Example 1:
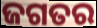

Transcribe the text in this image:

ଜଗତର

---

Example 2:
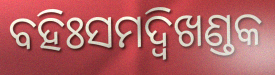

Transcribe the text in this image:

ବହିଃସମଦ୍ୱିଖଣ୍ଡକ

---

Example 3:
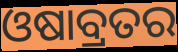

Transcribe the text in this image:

ଓଷାବ୍ରତର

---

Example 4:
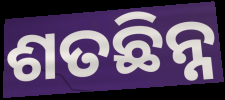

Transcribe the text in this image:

ଶତଛିନ୍ନ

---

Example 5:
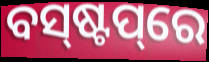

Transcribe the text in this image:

ବସ୍‌ଷ୍ଟପ୍‌ରେ